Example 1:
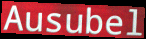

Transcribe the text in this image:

Ausubel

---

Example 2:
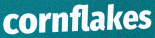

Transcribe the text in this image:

cornflakes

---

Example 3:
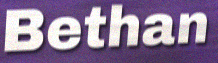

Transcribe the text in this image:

Bethan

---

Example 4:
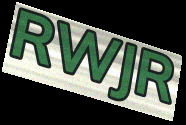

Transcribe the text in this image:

RWJR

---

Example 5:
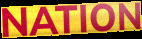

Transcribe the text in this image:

NATION